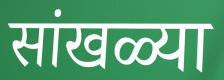
सांखळ्या